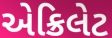
એક્રિલેટ